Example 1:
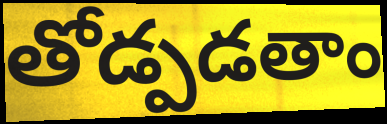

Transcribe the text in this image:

తోడ్పడతాం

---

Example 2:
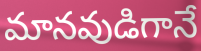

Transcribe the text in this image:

మానవుడిగానే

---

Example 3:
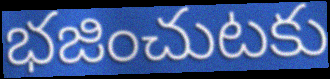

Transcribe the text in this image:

భజించుటకు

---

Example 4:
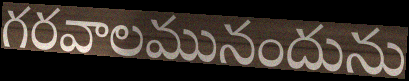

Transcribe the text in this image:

గరవాలమునందును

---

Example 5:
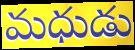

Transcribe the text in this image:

మధుడు